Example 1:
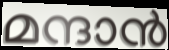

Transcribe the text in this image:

മന്ദാൻ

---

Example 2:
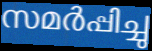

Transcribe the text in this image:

സമർപ്പിച്ചു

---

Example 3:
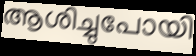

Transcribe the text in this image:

ആശിച്ചുപോയി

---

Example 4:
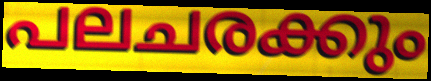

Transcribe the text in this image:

പലചരക്കും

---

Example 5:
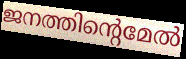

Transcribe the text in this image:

ജനത്തിന്റെമേൽ